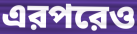
এরপরেও